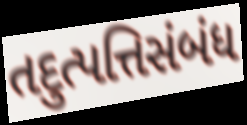
તદુત્પત્તિસંબંધ